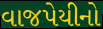
વાજપેયીનો